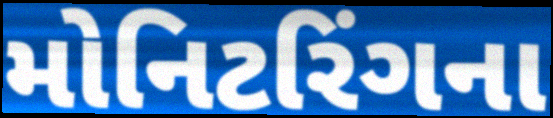
મોનિટરિંગના